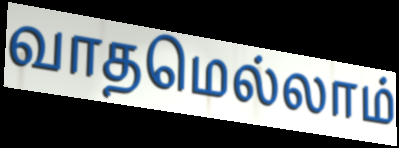
வாதமெல்லாம்